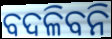
ବଦଳିବନି